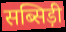
सब्सिड़ी